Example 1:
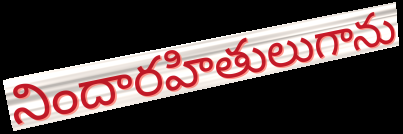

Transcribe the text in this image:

నిందారహితులుగాను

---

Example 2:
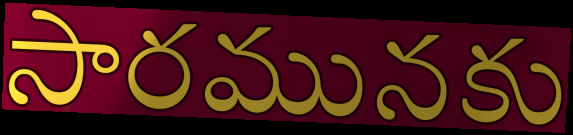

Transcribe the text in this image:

సారమునకు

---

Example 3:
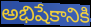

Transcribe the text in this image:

అభిషేకానికి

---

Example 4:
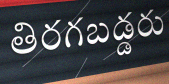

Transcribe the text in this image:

తిరగబడ్డరు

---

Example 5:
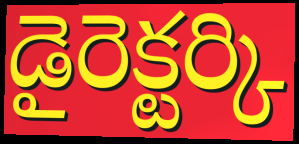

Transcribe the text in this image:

డైరెక్టర్కి